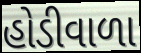
હોડીવાળા